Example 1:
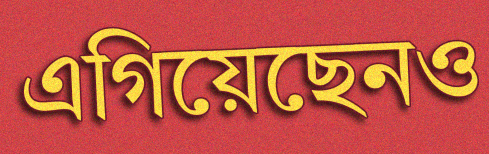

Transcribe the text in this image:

এগিয়েছেনও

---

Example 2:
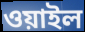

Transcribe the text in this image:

ওয়াইল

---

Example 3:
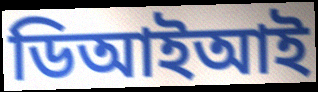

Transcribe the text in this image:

ডিআইআই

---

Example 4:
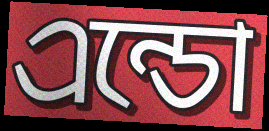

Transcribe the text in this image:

এন্ডো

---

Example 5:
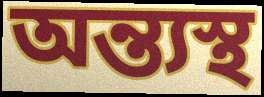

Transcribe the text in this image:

অন্ত্যস্থ